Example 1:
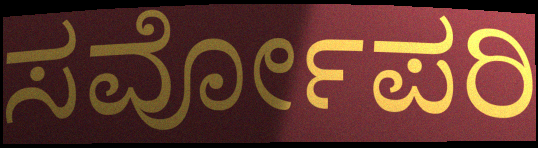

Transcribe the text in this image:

ಸರ್ವೋಪರಿ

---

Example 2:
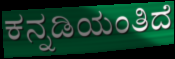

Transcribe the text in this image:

ಕನ್ನಡಿಯಂತಿದೆ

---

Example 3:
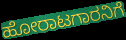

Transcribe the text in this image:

ಹೋರಾಟಗಾರನಿಗೆ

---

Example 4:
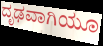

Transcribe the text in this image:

ದೃಢವಾಗಿಯೂ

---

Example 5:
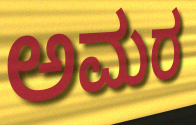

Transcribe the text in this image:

ಅಮರ